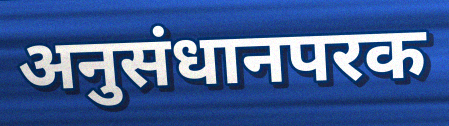
अनुसंधानपरक